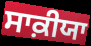
ਸਾਕ਼ੀਯਾ